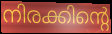
നിരക്കിന്റെ